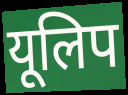
यूलिप